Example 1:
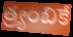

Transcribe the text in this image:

త్ర్యంబికే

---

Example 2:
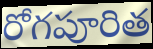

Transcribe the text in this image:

రోగపూరిత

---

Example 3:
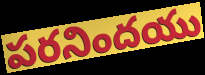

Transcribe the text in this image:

పరనిందయు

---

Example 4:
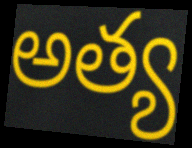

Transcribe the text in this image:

అత్య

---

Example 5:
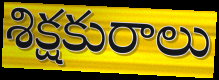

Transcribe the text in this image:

శిక్షకురాలు